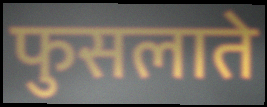
फुसलाते